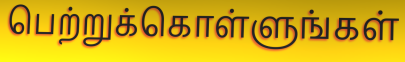
பெற்றுக்கொள்ளுங்கள்